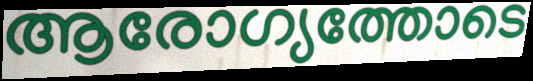
ആരോഗ്യത്തോടെ